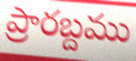
ప్రారబ్దము